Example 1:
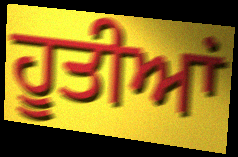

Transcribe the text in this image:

ਹੂਤੀਆਂ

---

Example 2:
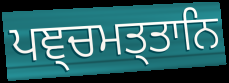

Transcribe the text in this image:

ਪਞ੍ਚਮਤ੍ਤਾਨਿ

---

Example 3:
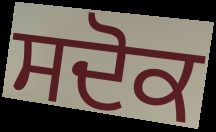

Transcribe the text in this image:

ਸਦੋਕ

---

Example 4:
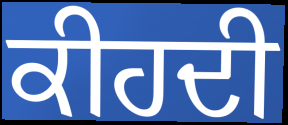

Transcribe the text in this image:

ਕੀਹਦੀ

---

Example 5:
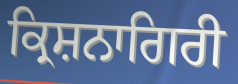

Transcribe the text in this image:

ਕ੍ਰਿਸ਼ਨਾਗਿਰੀ